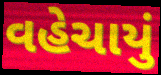
વહેચાયું